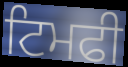
ਟਿਮਫੀ